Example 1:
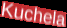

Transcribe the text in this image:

Kuchela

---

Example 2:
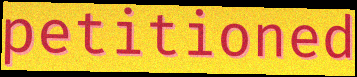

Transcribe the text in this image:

petitioned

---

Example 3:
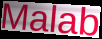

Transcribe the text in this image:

Malab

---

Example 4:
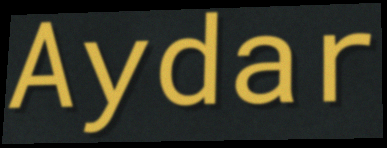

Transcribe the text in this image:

Aydar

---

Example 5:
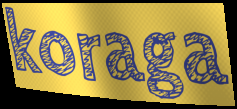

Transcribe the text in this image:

koraga